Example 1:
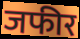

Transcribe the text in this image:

जफीर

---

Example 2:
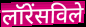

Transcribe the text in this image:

लॉरेंसविले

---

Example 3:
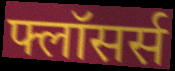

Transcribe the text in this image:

फ्लॉसर्स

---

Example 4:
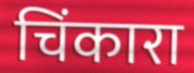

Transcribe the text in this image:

चिंकारा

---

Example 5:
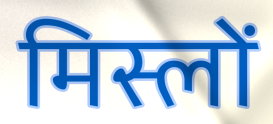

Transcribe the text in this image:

मिस्लों